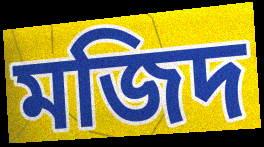
মজিদ